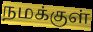
நமக்குள்